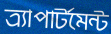
ত্র্যাপার্টমেন্ট